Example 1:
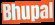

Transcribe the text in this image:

Bhupal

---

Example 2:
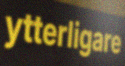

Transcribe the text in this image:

ytterligare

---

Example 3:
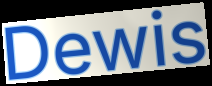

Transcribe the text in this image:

Dewis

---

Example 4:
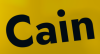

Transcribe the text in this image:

Cain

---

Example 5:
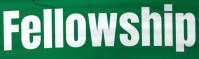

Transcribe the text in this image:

Fellowship